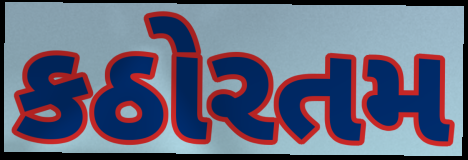
કઠોરતમ